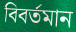
বিবর্তমান